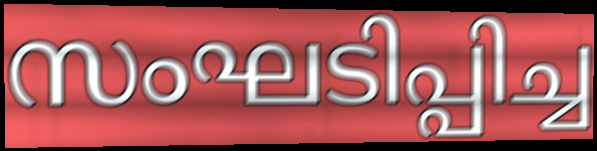
സംഘടിപ്പിച്ച